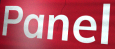
Panel